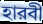
হারবী